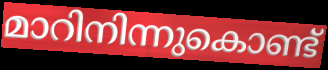
മാറിനിന്നുകൊണ്ട്